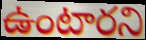
ఉంటారని